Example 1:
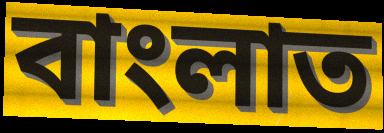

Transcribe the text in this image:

বাংলাত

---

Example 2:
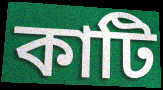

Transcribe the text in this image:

কাটি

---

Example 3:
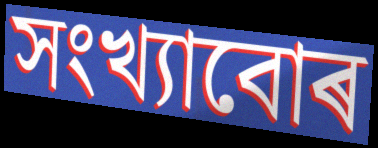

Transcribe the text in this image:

সংখ্যাবোৰ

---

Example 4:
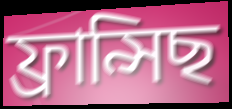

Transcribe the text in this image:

ফ্ৰান্সিছ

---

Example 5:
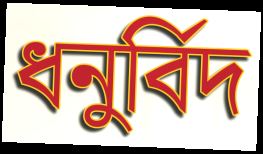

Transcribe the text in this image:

ধনুৰ্বিদ